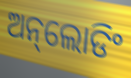
ଅନ୍‌ଲୋଡିଂ